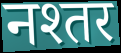
नश्तर